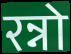
रन्नो